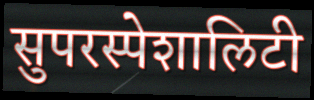
सुपरस्पेशालिटी